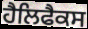
ਹੈਲਿਫੈਕਸ